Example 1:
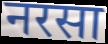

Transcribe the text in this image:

नरसा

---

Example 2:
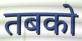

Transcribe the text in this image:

तबको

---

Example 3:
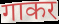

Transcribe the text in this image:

गाकर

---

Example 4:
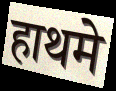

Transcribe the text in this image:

हाथमे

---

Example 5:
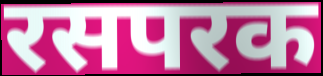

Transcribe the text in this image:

रसपरक